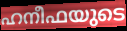
ഹനീഫയുടെ